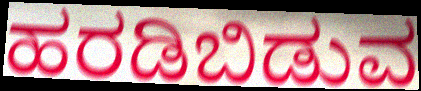
ಹರಡಿಬಿಡುವ